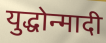
युद्धोन्मादी